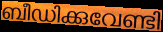
ബീഡിക്കുവേണ്ടി